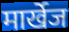
मार्खेज